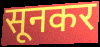
सूनकर